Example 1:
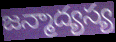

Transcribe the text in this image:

జన్మాద్యస్య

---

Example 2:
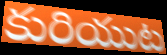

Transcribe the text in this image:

కురియుట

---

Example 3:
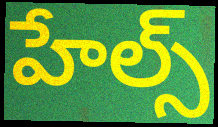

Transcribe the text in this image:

హేల్స్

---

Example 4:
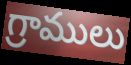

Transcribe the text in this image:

గ్రాములు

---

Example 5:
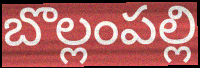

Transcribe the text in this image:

బొల్లంపల్లి